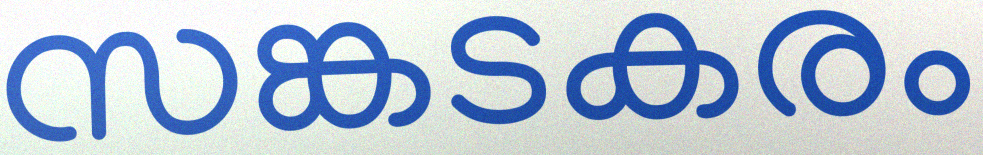
സങ്കടകരം